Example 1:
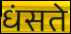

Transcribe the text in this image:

धंसते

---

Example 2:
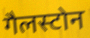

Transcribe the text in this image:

गैलस्टोन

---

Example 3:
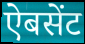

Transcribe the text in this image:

ऐबसेंट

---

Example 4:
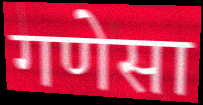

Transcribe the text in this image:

गणेसा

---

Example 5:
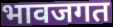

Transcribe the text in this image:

भावजगत